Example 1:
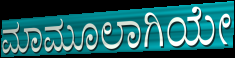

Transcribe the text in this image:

ಮಾಮೂಲಾಗಿಯೇ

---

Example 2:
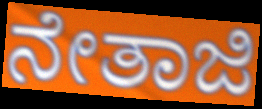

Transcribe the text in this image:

ನೇತಾಜಿ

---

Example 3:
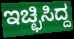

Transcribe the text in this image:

ಇಚ್ಛಿಸಿದ್ದ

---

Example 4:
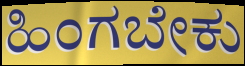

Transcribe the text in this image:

ಹಿಂಗಬೇಕು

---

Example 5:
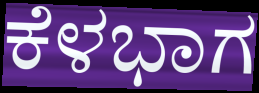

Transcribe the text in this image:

ಕೆಳಭಾಗ